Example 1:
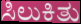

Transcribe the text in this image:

ಸಿಲುಕಿತು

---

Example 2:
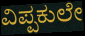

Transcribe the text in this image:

ವಿಪ್ಪಕುಲೇ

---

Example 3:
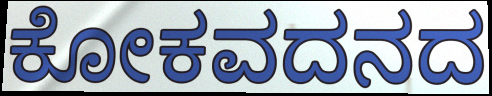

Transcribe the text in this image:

ಕೋಕವದನದ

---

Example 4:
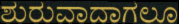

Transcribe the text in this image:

ಶುರುವಾದಾಗಲೂ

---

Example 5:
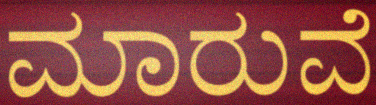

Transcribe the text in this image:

ಮಾರುವೆ